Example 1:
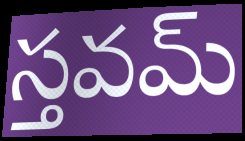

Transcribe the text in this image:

స్తవమ్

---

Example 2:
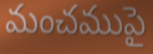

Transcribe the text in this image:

మంచముపై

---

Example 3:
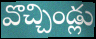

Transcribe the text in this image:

వొచ్చిండ్లు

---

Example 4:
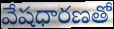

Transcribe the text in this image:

వేషధారణతో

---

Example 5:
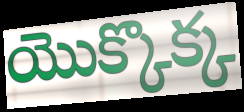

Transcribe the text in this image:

యొక్కొక్క